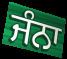
ਜੰਨਾ